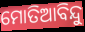
ମୋତିଆବିନ୍ଦୁ